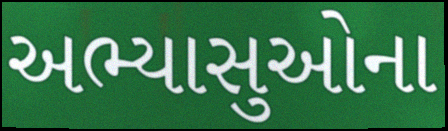
અભ્યાસુઓના